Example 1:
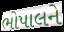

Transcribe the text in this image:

ભોપાલને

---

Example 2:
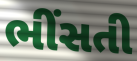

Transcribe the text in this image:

ભીંસતી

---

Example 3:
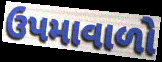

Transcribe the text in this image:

ઉપમાવાળો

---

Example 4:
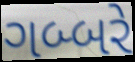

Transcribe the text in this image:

ગબ્બરે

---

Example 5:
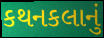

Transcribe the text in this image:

કથનકલાનું